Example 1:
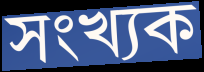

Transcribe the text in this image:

সংখ্যক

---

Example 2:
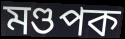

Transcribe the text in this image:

মণ্ডপক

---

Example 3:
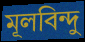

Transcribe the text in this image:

মূলবিন্দু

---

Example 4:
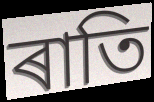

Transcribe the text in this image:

ৰাতি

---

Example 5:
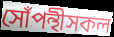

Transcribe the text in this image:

সোঁপন্থীসকল